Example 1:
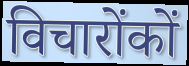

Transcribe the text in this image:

विचारोंकों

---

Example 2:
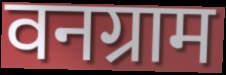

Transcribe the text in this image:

वनग्राम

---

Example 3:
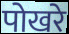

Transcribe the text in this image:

पोखरे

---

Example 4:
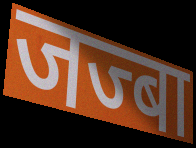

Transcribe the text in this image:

जज्बा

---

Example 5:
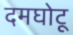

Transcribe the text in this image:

दमघोटू